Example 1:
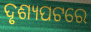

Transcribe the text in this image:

ଦୃଶ୍ୟପଟରେ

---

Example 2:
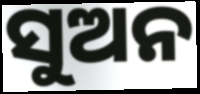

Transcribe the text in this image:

ସୁଅନ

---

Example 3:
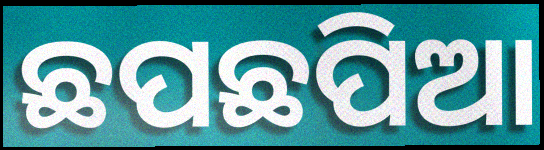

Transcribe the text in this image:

ଛପଛପିଆ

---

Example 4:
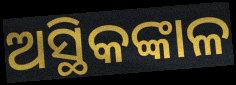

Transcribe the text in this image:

ଅସ୍ଥିକଙ୍କାଳ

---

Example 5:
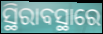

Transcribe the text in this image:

ସ୍ଥିରାବସ୍ଥାରେ